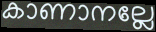
കാണാനല്ലേ